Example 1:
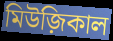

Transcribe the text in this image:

মিউজ়িকাল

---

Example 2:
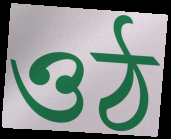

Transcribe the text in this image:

ওঠ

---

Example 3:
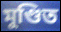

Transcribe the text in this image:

মুণ্ডিত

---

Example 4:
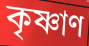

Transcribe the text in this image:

কৃষ্ণাণ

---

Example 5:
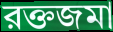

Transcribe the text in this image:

রক্তজমা